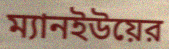
ম্যানইউয়ের